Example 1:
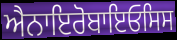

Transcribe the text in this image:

ਐਨਾਇਰੋਬਾਇਓਸਿਸ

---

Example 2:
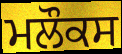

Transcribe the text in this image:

ਮਲੌਕਸ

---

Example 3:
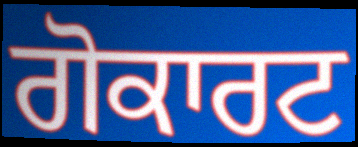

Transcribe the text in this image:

ਗੋਕਾਰਟ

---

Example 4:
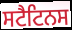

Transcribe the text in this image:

ਸਟੈਟਿਨਸ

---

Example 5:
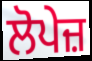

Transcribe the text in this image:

ਲੋਪੇਜ਼